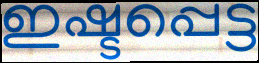
ഇഷ്ടപ്പെട്ട